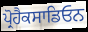
ਪ੍ਰੋਹੈਕਸਾਡਿਓਨ